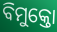
ବିମୁକ୍ତୋ